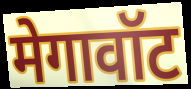
मेगावॉट